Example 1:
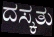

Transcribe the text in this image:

ದಸ್ಕತು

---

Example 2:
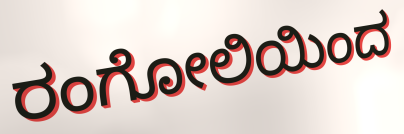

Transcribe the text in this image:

ರಂಗೋಲಿಯಿಂದ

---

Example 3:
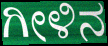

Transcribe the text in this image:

ಗೀಳಿನ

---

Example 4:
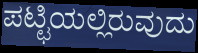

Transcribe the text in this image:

ಪಟ್ಟಿಯಲ್ಲಿರುವುದು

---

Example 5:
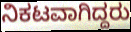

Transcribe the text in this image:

ನಿಕಟವಾಗಿದ್ದರು